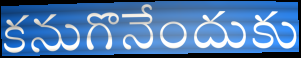
కనుగొనేందుకు